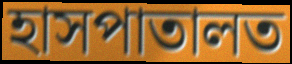
হাসপাতালত